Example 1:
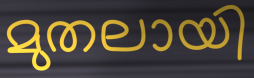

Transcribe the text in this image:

മുതലായി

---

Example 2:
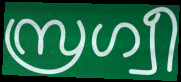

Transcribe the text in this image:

സ്രഗ്വീ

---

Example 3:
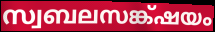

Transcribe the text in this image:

സ്വബലസങ്ക്ഷയം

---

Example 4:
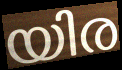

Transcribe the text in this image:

യിര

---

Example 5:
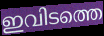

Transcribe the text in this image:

ഇവിടത്തെ